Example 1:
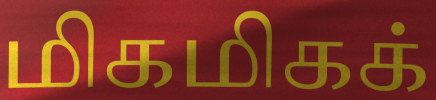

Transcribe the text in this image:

மிகமிகக்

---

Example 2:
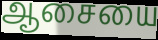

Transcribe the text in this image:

ஆசையை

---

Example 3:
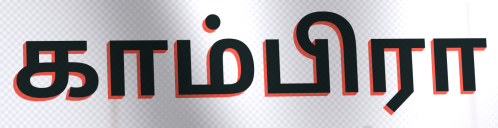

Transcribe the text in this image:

காம்பிரா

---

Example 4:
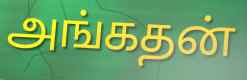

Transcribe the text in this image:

அங்கதன்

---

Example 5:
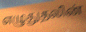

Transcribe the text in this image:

எழுதுதலின்